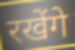
रखेंगे